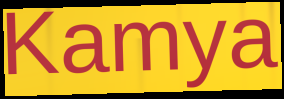
Kamya